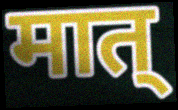
मात्